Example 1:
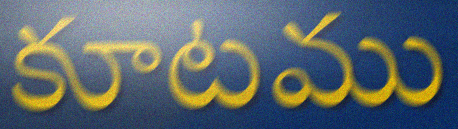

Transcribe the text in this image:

కూటము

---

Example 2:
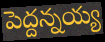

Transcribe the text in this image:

పెద్దన్నయ్య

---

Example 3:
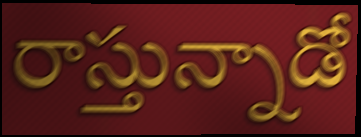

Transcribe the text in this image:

రాస్తున్నాడో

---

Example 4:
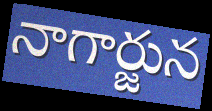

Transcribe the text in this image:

నాగార్జున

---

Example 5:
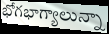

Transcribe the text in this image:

భోగభాగ్యాలున్నా